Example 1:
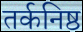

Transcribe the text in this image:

तर्कनिष्ठ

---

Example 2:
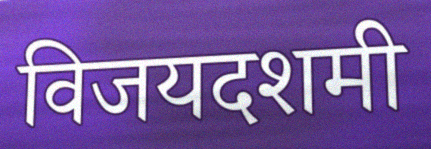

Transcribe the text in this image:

विजयदशमी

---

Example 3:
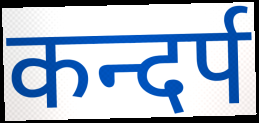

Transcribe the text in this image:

कन्दर्प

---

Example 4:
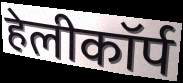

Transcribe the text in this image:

हेलीकॉर्प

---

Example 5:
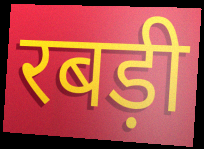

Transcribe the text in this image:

रबड़ी